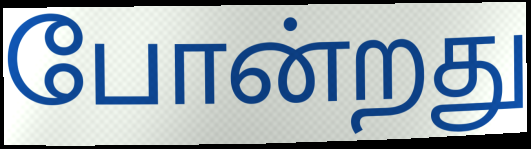
போன்றது